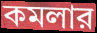
কমলার